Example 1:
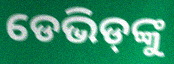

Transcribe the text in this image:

ଡେଭିଡ୍‌ଙ୍କୁ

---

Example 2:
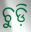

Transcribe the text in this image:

ଚୁଡ଼ି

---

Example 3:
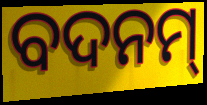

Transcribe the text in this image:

ବଦନମ୍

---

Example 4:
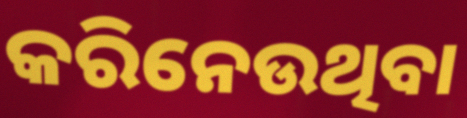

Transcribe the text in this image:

କରିନେଉଥିବା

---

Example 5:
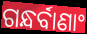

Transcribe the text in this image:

ଗନ୍ଧର୍ବାଣାଂ